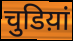
चुडिय़ां